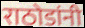
राठोडांनी